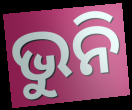
ଭୁନି